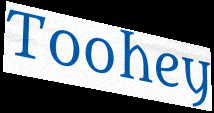
Toohey